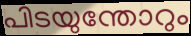
പിടയുന്തോറും